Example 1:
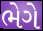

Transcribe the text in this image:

ભેગે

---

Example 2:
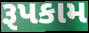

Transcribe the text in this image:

રૂપકામ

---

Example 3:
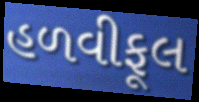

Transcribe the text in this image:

હળવીફૂલ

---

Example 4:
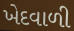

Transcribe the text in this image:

ખેદવાળી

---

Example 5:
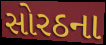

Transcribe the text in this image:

સોરઠના